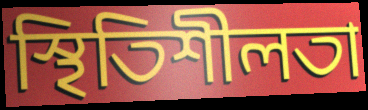
স্থিতিশীলতা